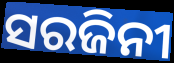
ସରଜିନୀ